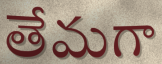
తేమగా